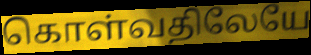
கொள்வதிலேயே